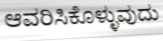
ಆವರಿಸಿಕೊಳ್ಳುವುದು